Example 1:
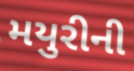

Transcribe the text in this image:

મયુરીની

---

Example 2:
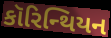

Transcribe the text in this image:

કૉરિન્થિયન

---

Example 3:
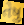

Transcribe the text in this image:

તેષુ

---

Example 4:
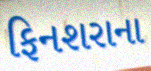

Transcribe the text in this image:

ફિનશરાના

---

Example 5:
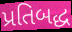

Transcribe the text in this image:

પ્રતિબદ્ધ